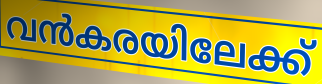
വൻകരയിലേക്ക്